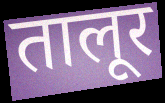
तालूर